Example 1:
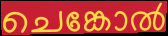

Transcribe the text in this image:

ചെങ്കോൽ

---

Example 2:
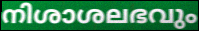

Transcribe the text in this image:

നിശാശലഭവും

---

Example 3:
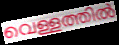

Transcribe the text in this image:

വെള്ളത്തിൽ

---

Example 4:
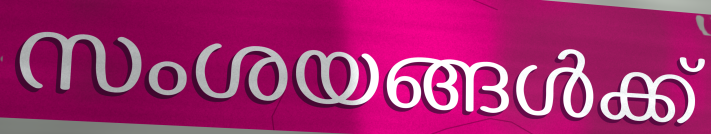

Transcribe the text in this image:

സംശയങ്ങൾക്ക്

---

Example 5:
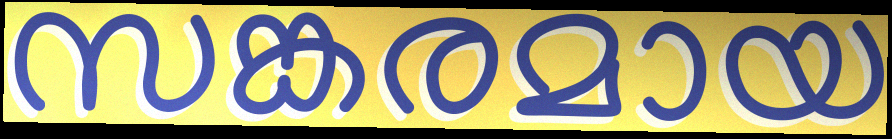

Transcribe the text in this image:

സങ്കരമായ